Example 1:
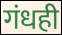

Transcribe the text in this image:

गंधही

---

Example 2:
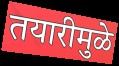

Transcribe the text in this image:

तयारीमुळे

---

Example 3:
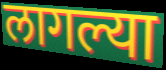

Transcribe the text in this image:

लागल्‍या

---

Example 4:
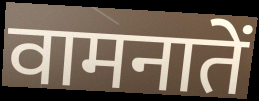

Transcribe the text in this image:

वामनातें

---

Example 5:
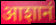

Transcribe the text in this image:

आशानं